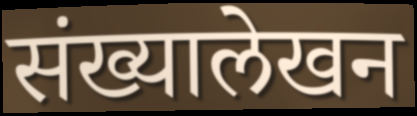
संख्यालेखन